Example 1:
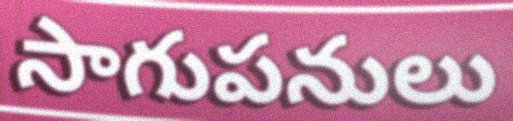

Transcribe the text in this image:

సాగుపనులు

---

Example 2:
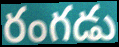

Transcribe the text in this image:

రంగడు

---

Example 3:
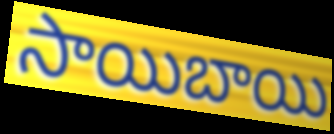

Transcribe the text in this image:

సాయిబాయి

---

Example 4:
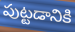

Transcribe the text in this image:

పుట్టడానికి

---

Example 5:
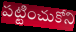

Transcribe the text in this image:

పట్టించుకోని